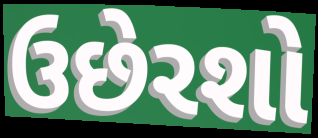
ઉછેરશો